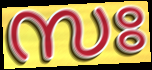
സഃ